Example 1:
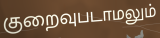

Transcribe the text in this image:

குறைவுபடாமலும்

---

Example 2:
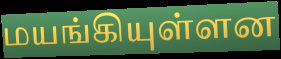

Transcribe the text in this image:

மயங்கியுள்ளன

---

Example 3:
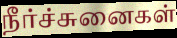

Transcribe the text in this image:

நீர்ச்சுனைகள்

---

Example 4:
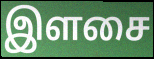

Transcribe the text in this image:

இளசை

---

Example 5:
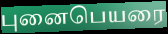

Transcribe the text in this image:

புனைபெயரை